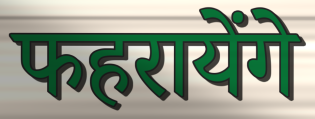
फहरायेंगे